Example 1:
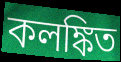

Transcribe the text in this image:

কলঙ্কিত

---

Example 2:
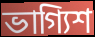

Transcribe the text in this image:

ভাগ্যিশ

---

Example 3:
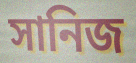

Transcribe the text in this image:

সানিজ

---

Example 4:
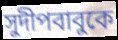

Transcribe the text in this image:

সুদীপবাবুকে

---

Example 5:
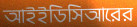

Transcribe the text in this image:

আইইডিসিআরের